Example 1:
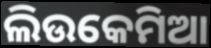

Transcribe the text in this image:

ଲିଉକେମିଆ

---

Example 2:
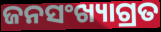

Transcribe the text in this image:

ଜନସଂଖ୍ୟାଗ୍ରତ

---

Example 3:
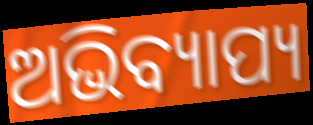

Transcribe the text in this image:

ଅଭିବ୍ୟାପ୍ୟ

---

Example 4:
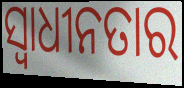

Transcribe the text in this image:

ସ୍ବାଧୀନତାର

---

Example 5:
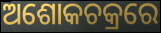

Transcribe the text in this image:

ଅଶୋକଚକ୍ରରେ